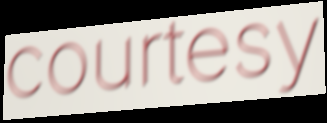
courtesy